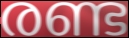
രണ്ട